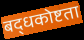
बद्धकोष्टता